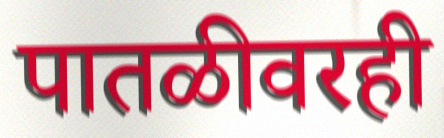
पातळीवरही